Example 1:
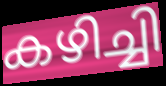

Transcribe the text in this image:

കഴിച്ചി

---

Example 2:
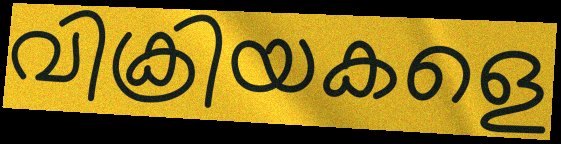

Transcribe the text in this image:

വിക്രിയകളെ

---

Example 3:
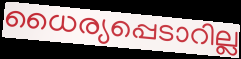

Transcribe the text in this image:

ധൈര്യപ്പെടാറില്ല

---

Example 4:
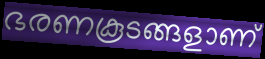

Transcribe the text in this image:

ഭരണകൂടങ്ങളാണ്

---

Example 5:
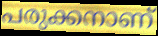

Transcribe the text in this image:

പരുക്കനാണ്